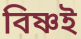
বিষ্ণই